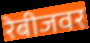
रेबीजवर